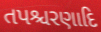
તપશ્ચરણાદિ